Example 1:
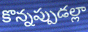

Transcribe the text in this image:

కొన్నప్పుడల్లా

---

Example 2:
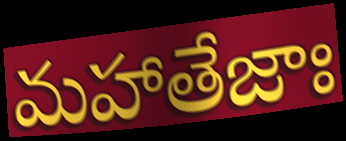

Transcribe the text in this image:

మహాతేజాః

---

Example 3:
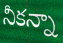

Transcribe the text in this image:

నీకన్నా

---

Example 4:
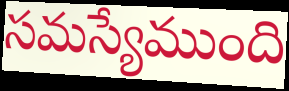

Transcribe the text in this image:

సమస్యేముంది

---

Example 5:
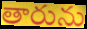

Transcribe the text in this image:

తారును